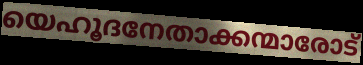
യെഹൂദനേതാക്കന്മാരോട്